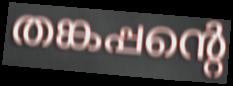
തങ്കപ്പന്റെ